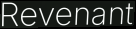
Revenant